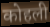
कोहली